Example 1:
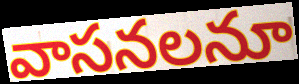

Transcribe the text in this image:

వాసనలనూ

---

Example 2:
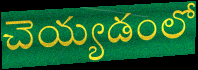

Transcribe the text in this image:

చెయ్యడంలో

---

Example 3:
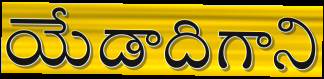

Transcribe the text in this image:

యేడాదిగాని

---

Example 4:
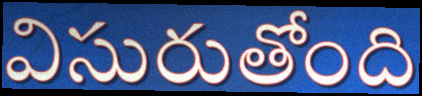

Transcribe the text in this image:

విసురుతోంది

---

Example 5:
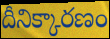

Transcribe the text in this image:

దీనిక్కారణం